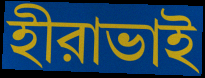
হীরাভাই